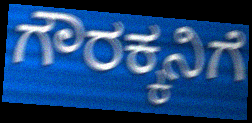
ಗೌರಕ್ಕನಿಗೆ